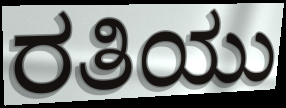
ರತಿಯು